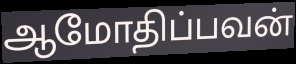
ஆமோதிப்பவன்